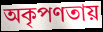
অকৃপণতায়